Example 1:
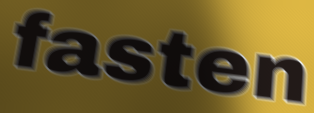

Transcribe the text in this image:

fasten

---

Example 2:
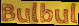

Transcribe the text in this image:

Bulbul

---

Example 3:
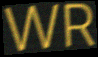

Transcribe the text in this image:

WR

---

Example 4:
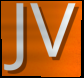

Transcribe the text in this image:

JV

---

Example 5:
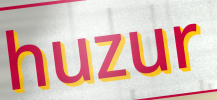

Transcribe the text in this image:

huzur